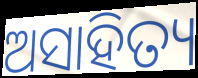
ଅସାହିତ୍ୟ